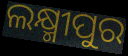
ଲକ୍ଷ୍ମୀପୁର